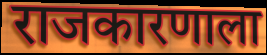
राजकारणाला